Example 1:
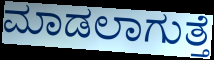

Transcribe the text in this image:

ಮಾಡಲಾಗುತ್ತೆ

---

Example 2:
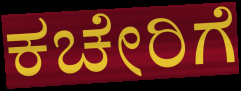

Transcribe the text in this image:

ಕಚೇರಿಗೆ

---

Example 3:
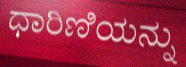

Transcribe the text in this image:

ಧಾರಿಣಿಯನ್ನು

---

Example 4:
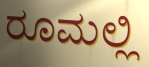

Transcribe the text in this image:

ರೂಮಲ್ಲಿ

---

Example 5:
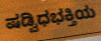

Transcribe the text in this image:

ಷಡ್ವಿಧಭಕ್ತಿಯ